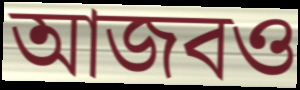
আজবও